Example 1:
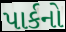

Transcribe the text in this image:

પાર્કનો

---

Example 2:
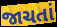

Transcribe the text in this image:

જાચતાં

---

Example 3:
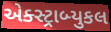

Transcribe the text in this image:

એક્સ્ટ્રાબ્યુકલ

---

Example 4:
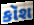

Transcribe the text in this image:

કૉશ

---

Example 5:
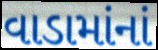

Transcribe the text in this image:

વાડામાંનાં